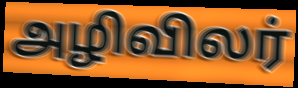
அழிவிலர்